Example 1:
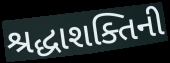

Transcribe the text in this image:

શ્રદ્ધાશક્તિની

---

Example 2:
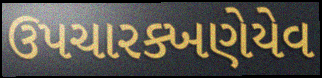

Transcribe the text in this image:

ઉપચારક્ખણેયેવ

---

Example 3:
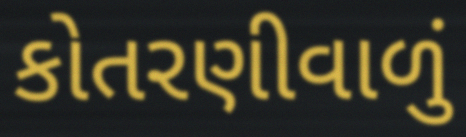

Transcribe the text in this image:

કોતરણીવાળું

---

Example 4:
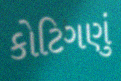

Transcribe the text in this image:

કોટિગણું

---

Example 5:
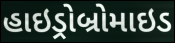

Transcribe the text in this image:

હાઇડ્રોબ્રોમાઇડ